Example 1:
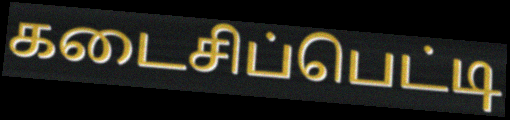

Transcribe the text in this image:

கடைசிப்பெட்டி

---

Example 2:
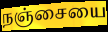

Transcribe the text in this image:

நஞ்சையை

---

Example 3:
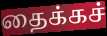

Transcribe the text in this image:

தைக்கச்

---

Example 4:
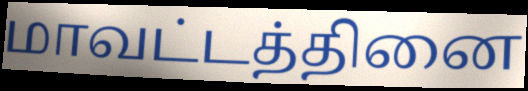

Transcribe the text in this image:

மாவட்டத்தினை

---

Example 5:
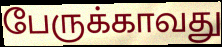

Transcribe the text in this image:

பேருக்காவது